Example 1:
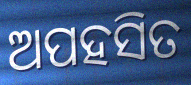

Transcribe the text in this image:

ଅପହସିତ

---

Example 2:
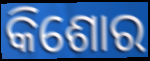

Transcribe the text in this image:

କିଶୋର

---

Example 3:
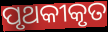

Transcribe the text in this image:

ପୃଥକୀକୃତ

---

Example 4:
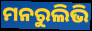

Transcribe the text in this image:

ମନରୁଲିଭି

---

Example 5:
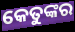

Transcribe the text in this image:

କେତୁଙ୍କର